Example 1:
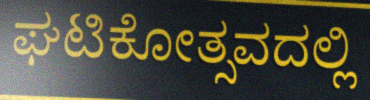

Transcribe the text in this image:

ಘಟಿಕೋತ್ಸವದಲ್ಲಿ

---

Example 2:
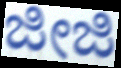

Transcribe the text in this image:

ಜೀಜಿ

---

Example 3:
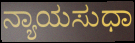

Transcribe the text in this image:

ನ್ಯಾಯಸುಧಾ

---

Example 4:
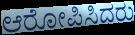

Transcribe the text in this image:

ಆರೋಪಿಸಿದರು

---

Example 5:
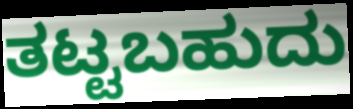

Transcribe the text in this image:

ತಟ್ಟಬಹುದು